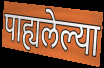
पाह्यलेल्या